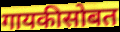
गायकीसोबत